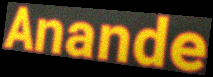
Anande